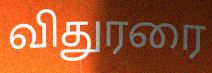
விதுரரை